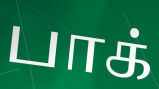
பாக்